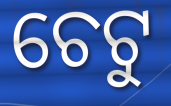
ଚେଟୁ